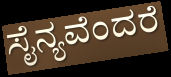
ಸೈನ್ಯವೆಂದರೆ